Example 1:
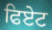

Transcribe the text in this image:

ਫਿਏਟ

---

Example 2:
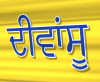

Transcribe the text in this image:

ਦੀਵਾਂਸੂ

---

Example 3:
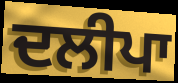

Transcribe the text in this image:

ਦਲੀਪਾ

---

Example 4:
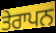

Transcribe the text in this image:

ਤੇਰਾਪਨ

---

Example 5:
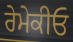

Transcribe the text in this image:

ਰੇਮੇਕੀਓ